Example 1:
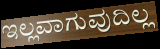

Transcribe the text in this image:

ಇಲ್ಲವಾಗುವುದಿಲ್ಲ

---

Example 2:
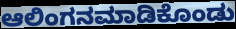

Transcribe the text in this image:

ಆಲಿಂಗನಮಾಡಿಕೊಂಡು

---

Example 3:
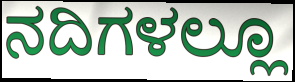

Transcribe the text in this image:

ನದಿಗಳಲ್ಲೂ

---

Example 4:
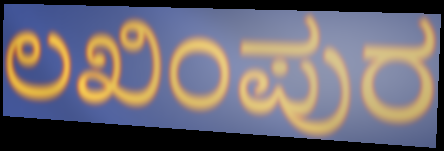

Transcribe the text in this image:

ಲಖಿಂಪುರ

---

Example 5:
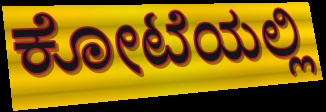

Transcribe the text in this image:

ಕೋಟೆಯಲ್ಲಿ